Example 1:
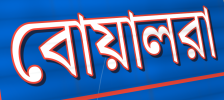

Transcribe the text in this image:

বোয়ালরা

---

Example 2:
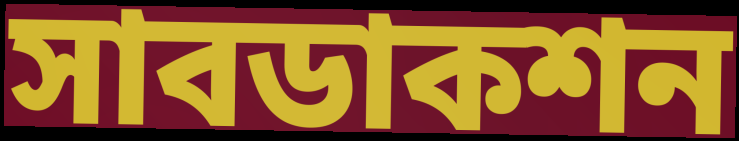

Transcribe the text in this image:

সাবডাকশন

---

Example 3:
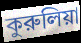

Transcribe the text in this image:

কুরুলিয়া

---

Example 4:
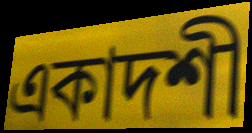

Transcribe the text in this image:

একাদশী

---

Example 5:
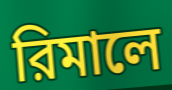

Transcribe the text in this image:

রিমালে